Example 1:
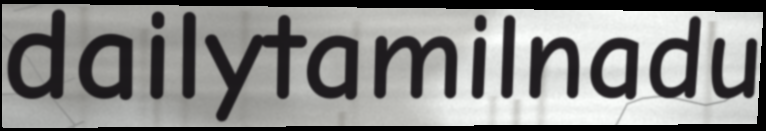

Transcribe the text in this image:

dailytamilnadu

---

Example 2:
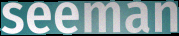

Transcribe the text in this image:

seeman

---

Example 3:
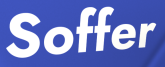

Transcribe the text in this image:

Soffer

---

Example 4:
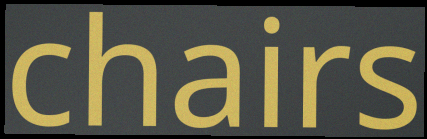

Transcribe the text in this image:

chairs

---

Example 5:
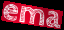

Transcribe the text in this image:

ema